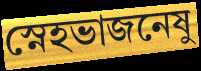
স্নেহভাজনেষু